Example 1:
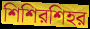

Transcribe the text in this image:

শিশিরশিহর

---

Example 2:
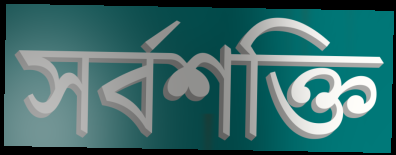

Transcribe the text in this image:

সর্বশক্তি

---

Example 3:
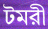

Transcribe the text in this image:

টমরী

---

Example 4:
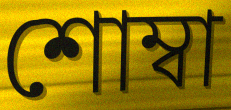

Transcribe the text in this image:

শোম্বা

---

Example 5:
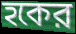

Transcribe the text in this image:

হকের